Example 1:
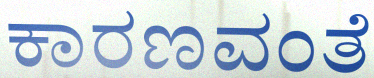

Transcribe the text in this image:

ಕಾರಣವಂತೆ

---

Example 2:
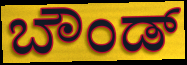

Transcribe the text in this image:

ಬೌಂಡ್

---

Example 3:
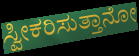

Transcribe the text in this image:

ಸ್ವೀಕರಿಸುತ್ತಾನೋ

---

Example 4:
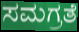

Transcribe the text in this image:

ಸಮಗ್ರತೆ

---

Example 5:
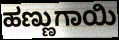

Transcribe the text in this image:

ಹಣ್ಣುಗಾಯಿ